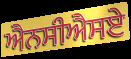
ਐਨਸੀਐਸਏ